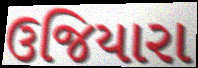
ઉજિયારા